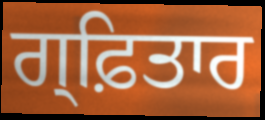
ਗ੍ਫ਼ਿਤਾਰ